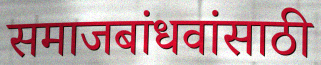
समाजबांधवांसाठी